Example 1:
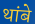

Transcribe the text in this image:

थांबे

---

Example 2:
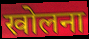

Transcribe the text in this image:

खोलना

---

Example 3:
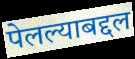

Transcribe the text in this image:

पेलल्याबद्दल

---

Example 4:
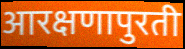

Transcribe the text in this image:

आरक्षणापुरती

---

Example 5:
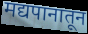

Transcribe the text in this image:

मद्यपानातून